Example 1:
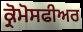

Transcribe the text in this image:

ਕ੍ਰੋਮੋਸਫੀਅਰ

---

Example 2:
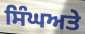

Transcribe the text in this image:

ਸਿੰਘਅਤੇ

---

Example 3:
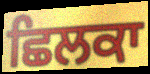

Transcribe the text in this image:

ਛਿਲਕਾ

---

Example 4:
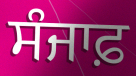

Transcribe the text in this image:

ਸੰਜਾਫ਼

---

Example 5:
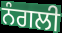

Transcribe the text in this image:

ਨੰਗਲੀ